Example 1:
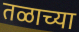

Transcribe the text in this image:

तळाच्या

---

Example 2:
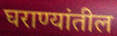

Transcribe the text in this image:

घराण्यांतील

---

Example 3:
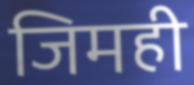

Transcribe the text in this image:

जिमही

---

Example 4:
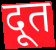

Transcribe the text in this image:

दूत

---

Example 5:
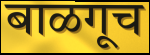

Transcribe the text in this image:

बाळगूच